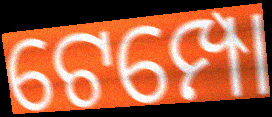
ଟେମ୍ପୋ